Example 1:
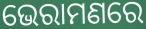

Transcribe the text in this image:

ଭେରାମଣରେ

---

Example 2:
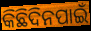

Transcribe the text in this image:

କିଛିଦିନପାଇଁ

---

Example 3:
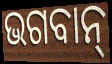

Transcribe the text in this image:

ଭଗବାନ୍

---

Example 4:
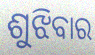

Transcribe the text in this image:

ଶୁଝିବାର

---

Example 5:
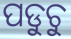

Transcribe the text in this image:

ପଡୁଚୁ